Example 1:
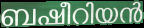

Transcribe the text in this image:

ബഷീറിയൻ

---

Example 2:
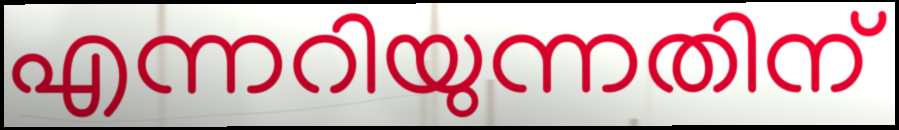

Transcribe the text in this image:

എന്നറിയുന്നതിന്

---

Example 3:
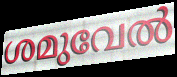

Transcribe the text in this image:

ശമുവേൽ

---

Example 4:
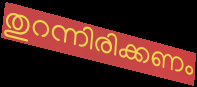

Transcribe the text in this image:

തുറന്നിരിക്കണം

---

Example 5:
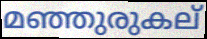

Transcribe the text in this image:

മഞ്ഞുരുകല്